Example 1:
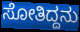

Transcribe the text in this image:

ಸೋತಿದ್ದನು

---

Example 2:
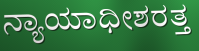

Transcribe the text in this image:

ನ್ಯಾಯಾಧೀಶರತ್ತ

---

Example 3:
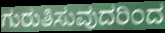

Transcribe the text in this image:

ಗುರುತಿಸುವುದರಿಂದ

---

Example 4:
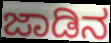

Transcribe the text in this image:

ಜಾಡಿನ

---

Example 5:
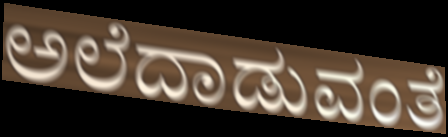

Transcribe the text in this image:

ಅಲೆದಾಡುವಂತೆ